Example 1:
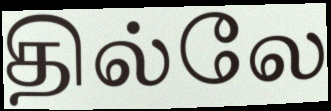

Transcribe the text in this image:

தில்லே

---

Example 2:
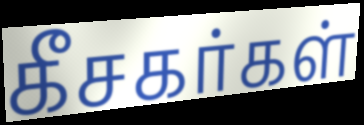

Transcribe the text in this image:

கீசகர்கள்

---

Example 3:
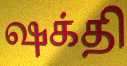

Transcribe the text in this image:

ஷக்தி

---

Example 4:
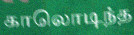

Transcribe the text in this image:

காலொடிந்த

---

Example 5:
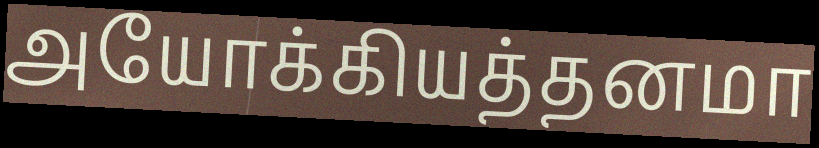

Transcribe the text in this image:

அயோக்கியத்தனமா